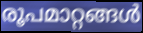
രൂപമാറ്റങ്ങൾ